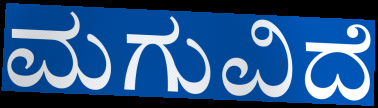
ಮಗುವಿದೆ